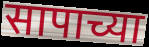
सापाच्या